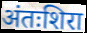
अंतःशिरा